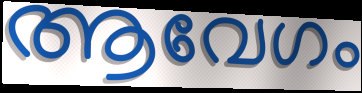
ആവേഗം